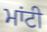
ਮਾਂਟੀ